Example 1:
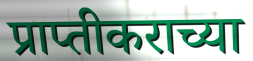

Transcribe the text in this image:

प्राप्तीकराच्या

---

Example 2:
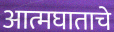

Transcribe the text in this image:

आत्मघाताचे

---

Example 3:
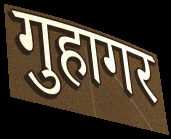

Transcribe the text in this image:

गुहागर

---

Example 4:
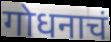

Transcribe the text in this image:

गोधनाचं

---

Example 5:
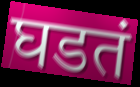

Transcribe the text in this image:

घडतं